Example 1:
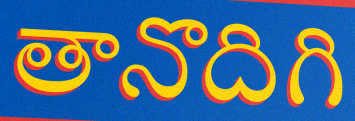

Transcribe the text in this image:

తానొదిగి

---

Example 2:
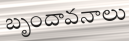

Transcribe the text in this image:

బృందావనాలు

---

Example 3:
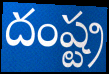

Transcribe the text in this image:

దంష్ట్ర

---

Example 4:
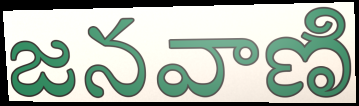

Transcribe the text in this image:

జనవాణి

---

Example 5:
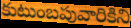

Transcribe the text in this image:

కుటుంబపువారికిని